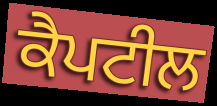
ਕੈਪਟੀਲ